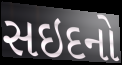
સઇદનો